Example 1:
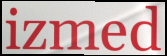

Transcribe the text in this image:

izmed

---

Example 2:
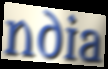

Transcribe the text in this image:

ndia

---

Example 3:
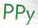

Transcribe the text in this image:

PPy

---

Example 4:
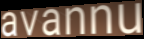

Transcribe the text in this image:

avannu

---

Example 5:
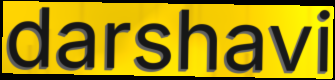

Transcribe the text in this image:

darshavi